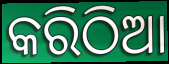
କରିଠିଆ